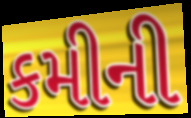
કમીની